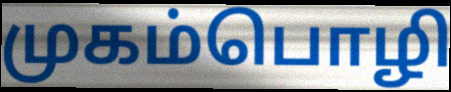
முகம்பொழி